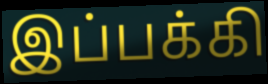
இப்பக்கி